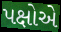
પક્ષોએ